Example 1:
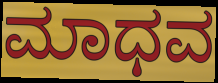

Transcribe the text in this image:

ಮಾಧವ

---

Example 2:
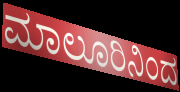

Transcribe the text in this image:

ಮಾಲೂರಿನಿಂದ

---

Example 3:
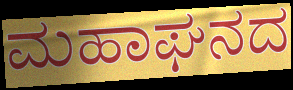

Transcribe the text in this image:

ಮಹಾಘನದ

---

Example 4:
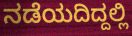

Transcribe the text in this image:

ನಡೆಯದಿದ್ದಲ್ಲಿ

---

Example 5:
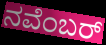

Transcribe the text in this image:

ನವೆಂಬರ್